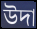
উদা